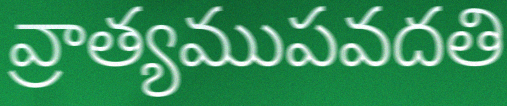
వ్రాత్యముపవదతి